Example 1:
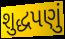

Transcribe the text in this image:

શુદ્ધપણું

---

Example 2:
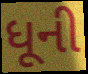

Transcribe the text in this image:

ધૂની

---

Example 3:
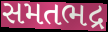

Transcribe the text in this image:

સમતભદ્ર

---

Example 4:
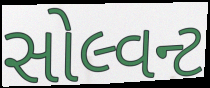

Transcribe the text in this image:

સોલ્વન્ટ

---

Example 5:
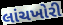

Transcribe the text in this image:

લાંચખોરી